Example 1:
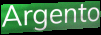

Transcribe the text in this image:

Argento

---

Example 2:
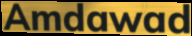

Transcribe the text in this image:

Amdawad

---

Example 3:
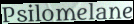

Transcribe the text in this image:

Psilomelane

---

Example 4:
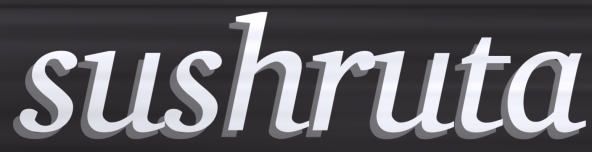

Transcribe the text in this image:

sushruta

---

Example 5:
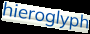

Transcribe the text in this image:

hieroglyph